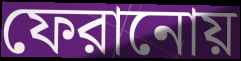
ফেরানোয়